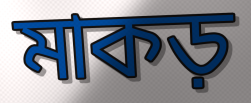
মাকড়